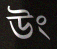
উং